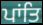
ਪਾਂਤਿ